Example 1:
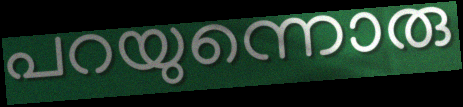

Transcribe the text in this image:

പറയുന്നൊരു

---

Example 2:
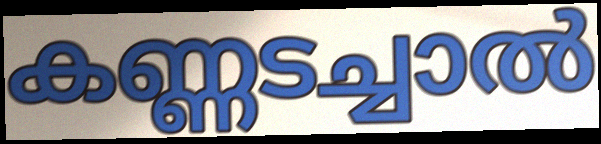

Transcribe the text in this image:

കണ്ണടച്ചാൽ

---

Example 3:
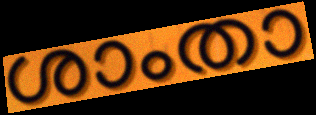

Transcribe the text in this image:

ശാംതാ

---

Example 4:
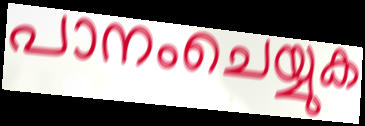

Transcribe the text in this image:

പാനംചെയ്യുക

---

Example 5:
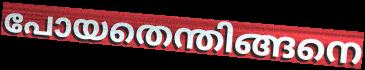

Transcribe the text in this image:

പോയതെന്തിങ്ങനെ